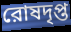
রোষদৃপ্ত